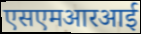
एसएमआरआई